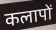
कलापों